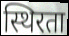
स्थिरता